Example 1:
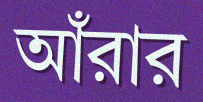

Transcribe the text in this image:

আঁরার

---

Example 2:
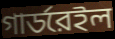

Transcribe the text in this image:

গার্ডরেইল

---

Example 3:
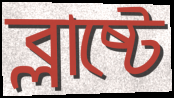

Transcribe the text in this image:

ব্লাষ্টে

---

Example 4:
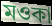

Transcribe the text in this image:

মওকা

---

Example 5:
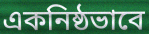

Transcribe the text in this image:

একনিষ্ঠভাবে